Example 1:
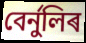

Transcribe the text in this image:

বেৰ্নুলিৰ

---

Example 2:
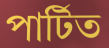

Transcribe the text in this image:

পাৰ্টিত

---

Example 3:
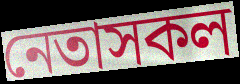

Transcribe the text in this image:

নেতাসকল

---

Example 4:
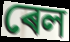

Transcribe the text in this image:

ৰেল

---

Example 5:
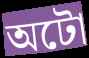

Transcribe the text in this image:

অটো